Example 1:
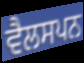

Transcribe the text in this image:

ਵੈਲਸਪਨ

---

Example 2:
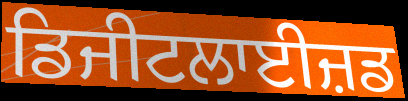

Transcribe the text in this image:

ਡਿਜੀਟਲਾਈਜ਼ਡ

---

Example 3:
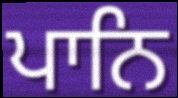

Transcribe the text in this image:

ਪਾਨਿ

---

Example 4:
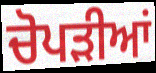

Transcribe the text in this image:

ਚੋਪੜੀਆਂ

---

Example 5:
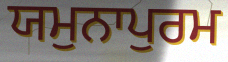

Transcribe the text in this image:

ਯਮੁਨਾਪੁਰਮ